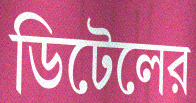
ডিটেলের